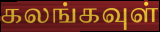
கலங்கவுள்